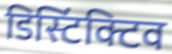
डिस्टिंक्टिव